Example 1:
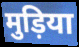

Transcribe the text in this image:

मुड़िया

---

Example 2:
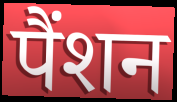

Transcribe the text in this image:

पैंशन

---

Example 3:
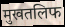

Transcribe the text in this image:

मुखतलिफ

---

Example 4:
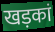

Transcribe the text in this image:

खड़कां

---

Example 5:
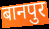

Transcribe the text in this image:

बानपुर